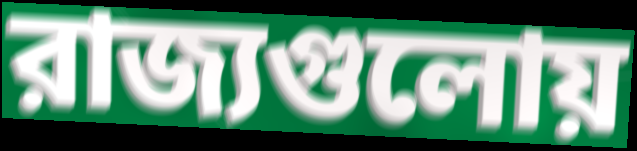
রাজ্যগুলোয়